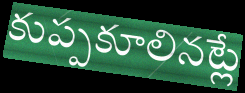
కుప్పకూలినట్లే